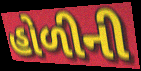
હોળીની